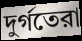
দুর্গতেরা